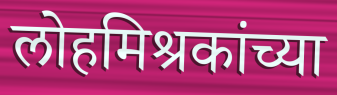
लोहमिश्रकांच्या